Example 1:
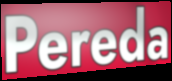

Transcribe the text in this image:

Pereda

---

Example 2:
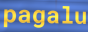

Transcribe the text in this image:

pagalu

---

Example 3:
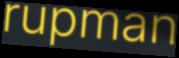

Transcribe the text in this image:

rupman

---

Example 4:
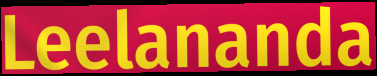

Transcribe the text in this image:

Leelananda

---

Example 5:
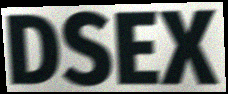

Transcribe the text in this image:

DSEX